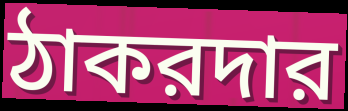
ঠাকরদার